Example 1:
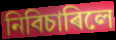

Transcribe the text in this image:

নিবিচাৰিলে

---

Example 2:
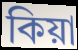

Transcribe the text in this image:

কিয়া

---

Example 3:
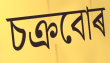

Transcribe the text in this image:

চক্ৰবোৰ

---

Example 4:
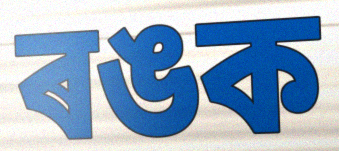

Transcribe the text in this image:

ৰঙক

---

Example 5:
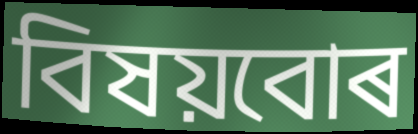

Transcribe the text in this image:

বিষয়বোৰ